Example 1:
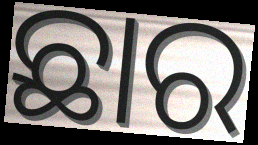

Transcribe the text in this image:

ଛାର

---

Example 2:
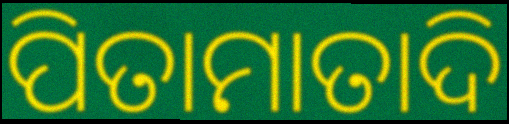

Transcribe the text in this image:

ପିତାମାତାଦି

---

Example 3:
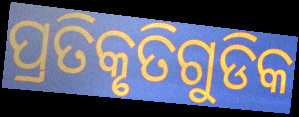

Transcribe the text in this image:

ପ୍ରତିକୃତିଗୁଡିକ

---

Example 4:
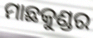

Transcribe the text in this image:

ମାଛକୁଣ୍ଡର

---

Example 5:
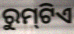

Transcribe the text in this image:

ରୁମ୍‌ଟିଏ